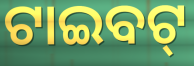
ଟାଇବଟ୍